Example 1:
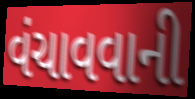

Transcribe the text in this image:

વંચાવવાની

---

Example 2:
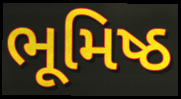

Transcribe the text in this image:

ભૂમિષ્ઠ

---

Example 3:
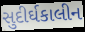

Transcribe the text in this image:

સુદીર્ઘકાલીન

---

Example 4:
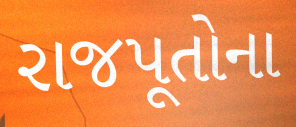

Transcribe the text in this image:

રાજપૂતોના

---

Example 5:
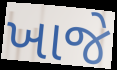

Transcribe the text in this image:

ખાજે